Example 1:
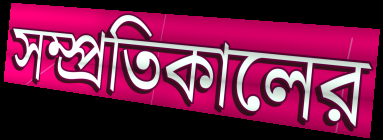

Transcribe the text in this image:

সম্প্রতিকালের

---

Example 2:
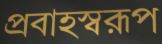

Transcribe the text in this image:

প্রবাহস্বরূপ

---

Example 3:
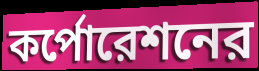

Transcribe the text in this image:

কর্পোরেশনের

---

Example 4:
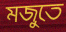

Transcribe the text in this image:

মজুতে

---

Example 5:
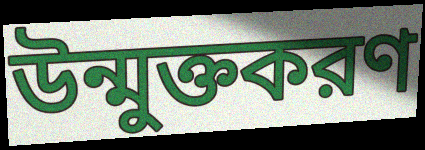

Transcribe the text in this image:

উন্মুক্তকরণ